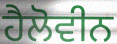
ਹੈਲੋਵੀਨ